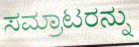
ಸಮ್ರಾಟರನ್ನು